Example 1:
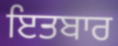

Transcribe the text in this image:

ਇਤਬਾਰ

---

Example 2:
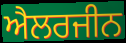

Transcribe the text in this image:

ਐਲਰਜੀਨ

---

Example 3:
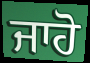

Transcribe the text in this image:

ਜਾਹੋ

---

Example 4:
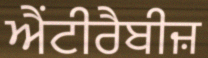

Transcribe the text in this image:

ਐਂਟੀਰੈਬੀਜ਼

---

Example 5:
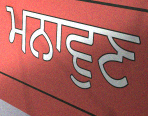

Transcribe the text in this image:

ਮਨਾਵੁਣ